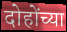
दोहोंच्या